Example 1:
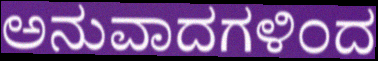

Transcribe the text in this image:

ಅನುವಾದಗಳಿಂದ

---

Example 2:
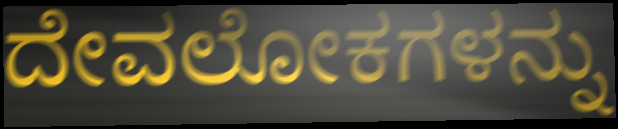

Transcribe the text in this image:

ದೇವಲೋಕಗಳನ್ನು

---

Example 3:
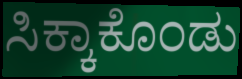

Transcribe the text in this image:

ಸಿಕ್ಕಾಕೊಂಡು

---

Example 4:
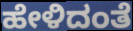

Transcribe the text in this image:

ಹೇಳಿದಂತೆ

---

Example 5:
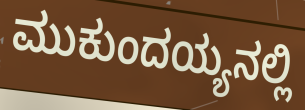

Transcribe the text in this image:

ಮುಕುಂದಯ್ಯನಲ್ಲಿ